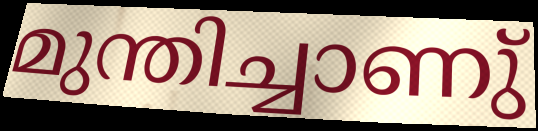
മുന്തിച്ചാണു്